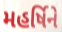
મહર્ષિને